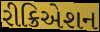
રીક્રિએશન